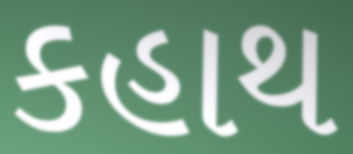
કહાથ